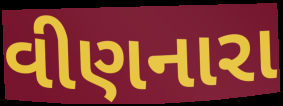
વીણનારા